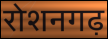
रोशनगढ़